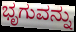
ಭೃಗುವನ್ನು